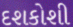
દશકોશી